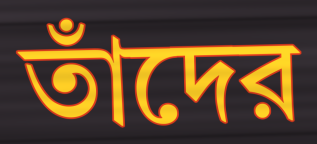
তাঁদের